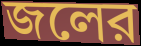
জলের